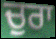
ਚੁਰਾ